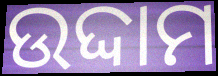
ଉଦ୍ଦାମ